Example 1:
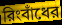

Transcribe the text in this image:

রিংবাঁধের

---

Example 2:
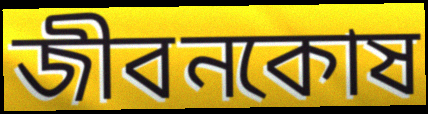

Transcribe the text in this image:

জীবনকোষ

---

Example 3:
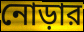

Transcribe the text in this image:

নোড়ার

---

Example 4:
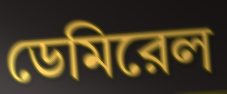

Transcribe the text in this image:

ডেমিরেল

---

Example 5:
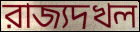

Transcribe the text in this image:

রাজ্যদখল